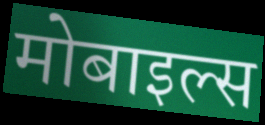
मोबाइल्स